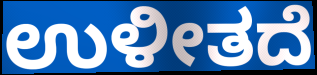
ಉಳೀತದೆ